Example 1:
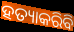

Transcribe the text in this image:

ହତ୍ୟାକରିବି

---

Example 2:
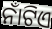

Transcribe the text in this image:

ନାଁଟିଏ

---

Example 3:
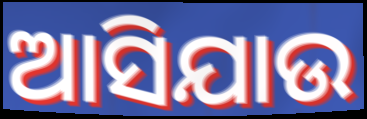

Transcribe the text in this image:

ଆସିଯାଉ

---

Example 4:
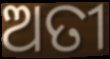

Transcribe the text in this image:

ଅତୀ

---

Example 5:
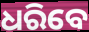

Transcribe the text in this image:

ଧରିବେ